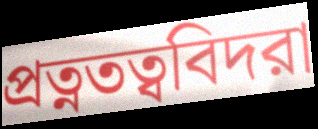
প্রত্নতত্ববিদরা